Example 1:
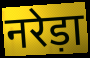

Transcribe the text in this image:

नरेड़ा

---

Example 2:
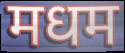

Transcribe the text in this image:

मधम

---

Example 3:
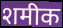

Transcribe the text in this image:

शमीक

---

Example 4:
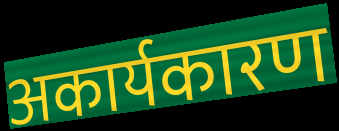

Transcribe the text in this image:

अकार्यकारण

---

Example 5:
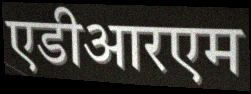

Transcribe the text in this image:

एडीआरएम